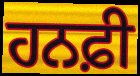
ਹਨਫ਼ੀ